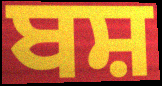
ਬਸ਼